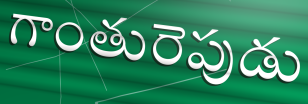
గాంతురెపుడు